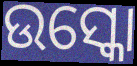
ଉସ୍କୋ